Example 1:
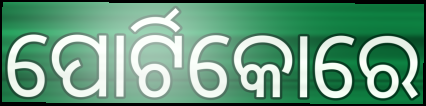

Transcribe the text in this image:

ପୋର୍ଟିକୋରେ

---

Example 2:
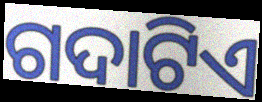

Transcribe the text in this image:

ଗଦାଟିଏ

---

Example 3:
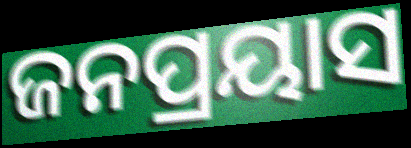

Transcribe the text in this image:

ଜନପ୍ରୟାସ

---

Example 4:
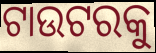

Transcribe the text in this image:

ଟାଉଟରକୁ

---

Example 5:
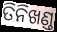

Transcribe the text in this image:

ତିନିଖଣ୍ଡ